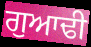
ਗੁਆਢੀ